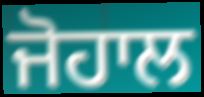
ਜੋਹਾਲ